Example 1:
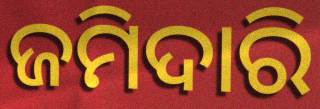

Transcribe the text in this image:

ଜମିଦାରି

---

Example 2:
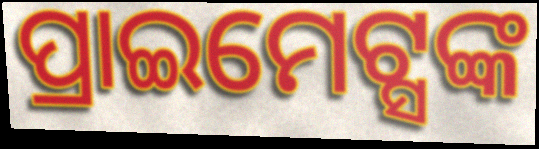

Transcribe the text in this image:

ପ୍ରାଇମେଟ୍ସଙ୍କ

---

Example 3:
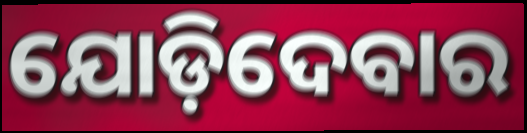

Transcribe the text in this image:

ଯୋଡ଼ିଦେବାର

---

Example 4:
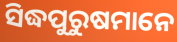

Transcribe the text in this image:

ସିଦ୍ଧପୁରୁଷମାନେ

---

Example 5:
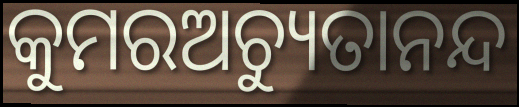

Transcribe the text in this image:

କୁମରଅଚ୍ୟୁତାନନ୍ଦ